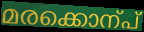
മരക്കൊന്പ്